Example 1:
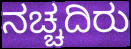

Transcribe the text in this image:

ನಚ್ಚದಿರು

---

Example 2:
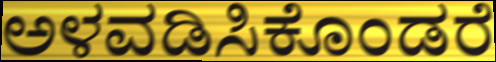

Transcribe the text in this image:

ಅಳವಡಿಸಿಕೊಂಡರೆ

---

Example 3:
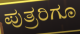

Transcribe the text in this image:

ಪುತ್ರರಿಗೂ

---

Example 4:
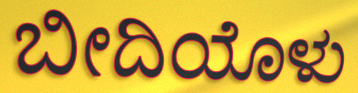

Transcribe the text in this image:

ಬೀದಿಯೊಳು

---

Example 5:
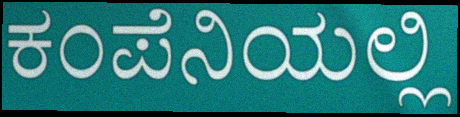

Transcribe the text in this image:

ಕಂಪೆನಿಯಲ್ಲಿ